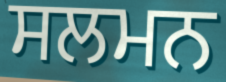
ਸਲਮਨ